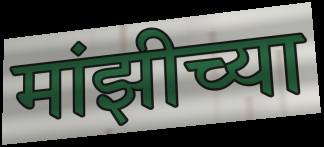
मांझीच्या